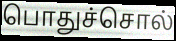
பொதுச்சொல்